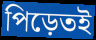
পিড়েতই